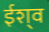
ईश्व